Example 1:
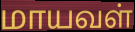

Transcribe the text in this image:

மாயவள்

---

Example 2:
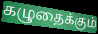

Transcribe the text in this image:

கழுதைக்கும்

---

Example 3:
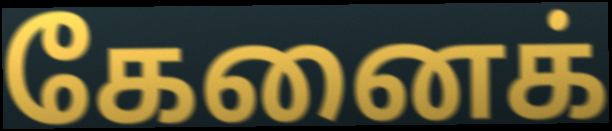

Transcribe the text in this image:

கேனைக்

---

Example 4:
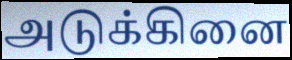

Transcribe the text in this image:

அடுக்கினை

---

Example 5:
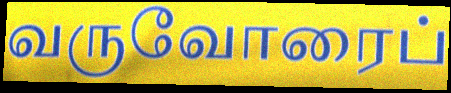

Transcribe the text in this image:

வருவோரைப்